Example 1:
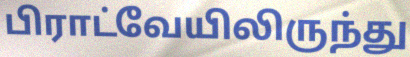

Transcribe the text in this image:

பிராட்வேயிலிருந்து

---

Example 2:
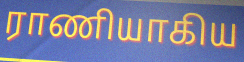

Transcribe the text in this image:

ராணியாகிய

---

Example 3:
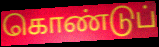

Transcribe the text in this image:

கொண்டுப்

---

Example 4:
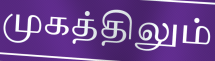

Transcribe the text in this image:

முகத்திலும்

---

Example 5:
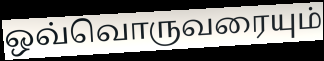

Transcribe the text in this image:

ஒவ்வொருவரையும்